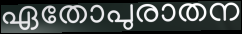
ഏതോപുരാതന